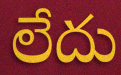
లేదు